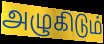
அழுகிடும்